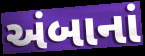
અંબાનાં